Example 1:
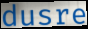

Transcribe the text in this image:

dusre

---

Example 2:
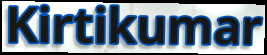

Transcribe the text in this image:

Kirtikumar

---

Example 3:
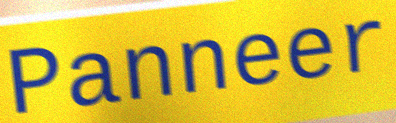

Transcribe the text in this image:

Panneer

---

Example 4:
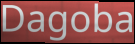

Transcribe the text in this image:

Dagoba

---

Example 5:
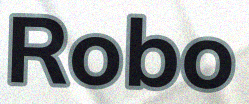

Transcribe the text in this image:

Robo